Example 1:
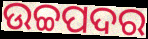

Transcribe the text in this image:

ଉଚ୍ଚପଦର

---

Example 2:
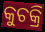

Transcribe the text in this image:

କୁଚକ୍ରି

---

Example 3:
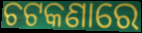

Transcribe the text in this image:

ଚଟକଣାରେ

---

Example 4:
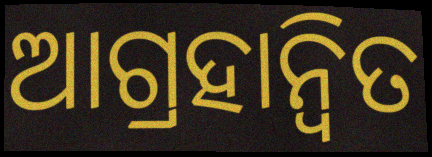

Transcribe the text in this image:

ଆଗ୍ରହାନ୍ୱିତ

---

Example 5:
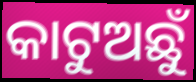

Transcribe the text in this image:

କାଟୁଅଛୁଁ